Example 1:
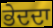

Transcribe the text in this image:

ਭੇਦਦਾ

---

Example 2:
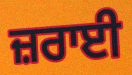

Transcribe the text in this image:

ਜ਼ਰਾਈ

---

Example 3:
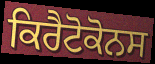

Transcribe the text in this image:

ਕਿਰੈਟੋਕੋਨਸ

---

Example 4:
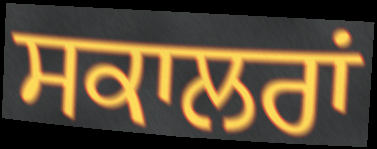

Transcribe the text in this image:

ਸਕਾਲਰਾਂ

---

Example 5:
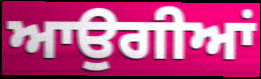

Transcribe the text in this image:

ਆਉਗੀਆਂ